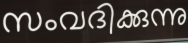
സംവദിക്കുന്നു